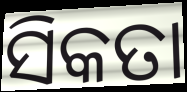
ସିକତା